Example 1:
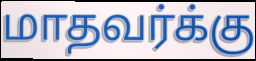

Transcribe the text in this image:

மாதவர்க்கு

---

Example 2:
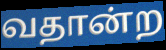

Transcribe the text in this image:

வதான்ற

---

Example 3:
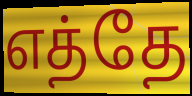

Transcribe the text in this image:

எத்தே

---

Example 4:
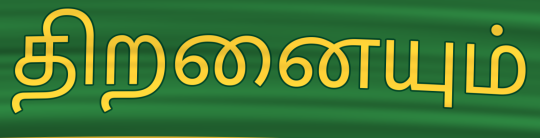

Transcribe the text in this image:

திறனையும்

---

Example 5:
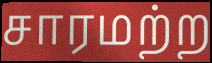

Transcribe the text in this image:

சாரமற்ற